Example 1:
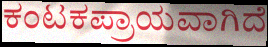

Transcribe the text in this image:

ಕಂಟಕಪ್ರಾಯವಾಗಿದೆ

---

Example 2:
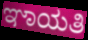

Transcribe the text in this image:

ಞಾಯತಿ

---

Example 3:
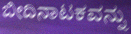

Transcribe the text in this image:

ಬೀದಿನಾಟಕವನ್ನು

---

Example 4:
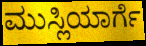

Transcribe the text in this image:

ಮುಸ್ಲಿಯಾರ್ಗೆ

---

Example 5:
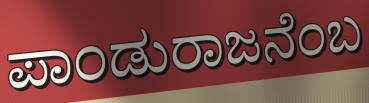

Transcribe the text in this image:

ಪಾಂಡುರಾಜನೆಂಬ